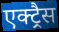
एक्ट्रैस